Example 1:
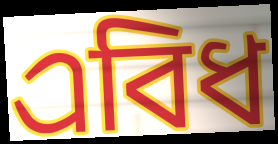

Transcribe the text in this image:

এবিধ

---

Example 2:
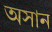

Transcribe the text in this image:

অসান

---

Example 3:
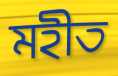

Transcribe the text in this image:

মহীত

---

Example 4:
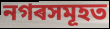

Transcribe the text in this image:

নগৰসমূহত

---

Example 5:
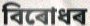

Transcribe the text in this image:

বিৰোধৰ